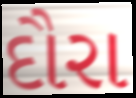
દૌરા